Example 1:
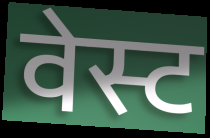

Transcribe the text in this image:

वेस्ट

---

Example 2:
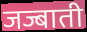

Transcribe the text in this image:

जज्बाती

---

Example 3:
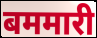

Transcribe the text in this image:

बममारी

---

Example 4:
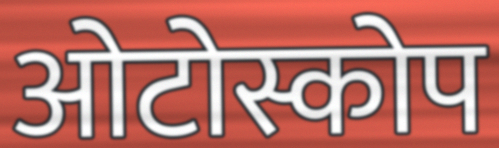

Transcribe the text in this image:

ओटोस्कोप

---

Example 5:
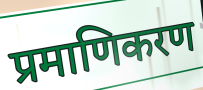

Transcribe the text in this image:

प्रमाणिकरण